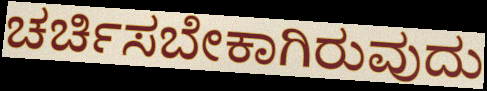
ಚರ್ಚಿಸಬೇಕಾಗಿರುವುದು